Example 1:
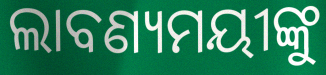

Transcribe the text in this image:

ଲାବଣ୍ୟମୟୀଙ୍କୁ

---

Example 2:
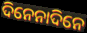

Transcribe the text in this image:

ଦିନେନାଦିନେ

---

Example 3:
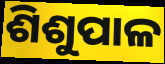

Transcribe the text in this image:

ଶିଶୁପାଳ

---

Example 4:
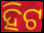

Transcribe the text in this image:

ହିଟ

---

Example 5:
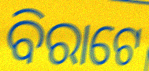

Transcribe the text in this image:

ବିରାଟେ